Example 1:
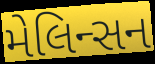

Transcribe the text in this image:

મેલિન્સન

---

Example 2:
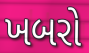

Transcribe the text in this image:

ખબરો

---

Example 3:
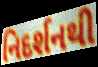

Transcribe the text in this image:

નિદર્શનથી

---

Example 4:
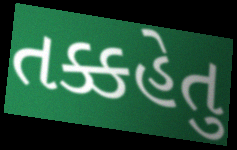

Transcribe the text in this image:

તક્કહેતુ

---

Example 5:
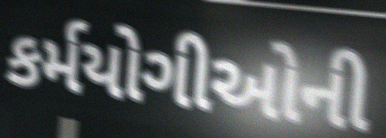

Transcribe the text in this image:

કર્મયોગીઓની